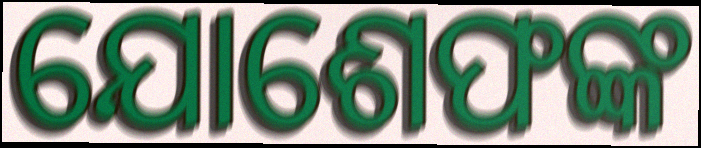
ଯୋଶେଫଙ୍କ